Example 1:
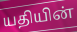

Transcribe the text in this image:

யதியின்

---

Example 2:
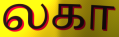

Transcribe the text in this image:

லகா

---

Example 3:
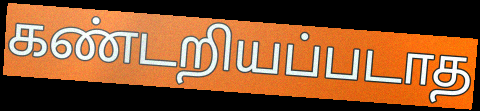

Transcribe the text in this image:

கண்டறியப்படாத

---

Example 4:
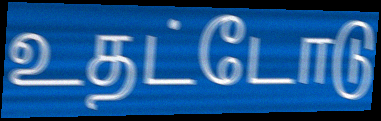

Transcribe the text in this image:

உதட்டோடு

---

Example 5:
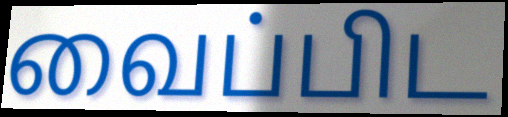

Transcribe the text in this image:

வைப்பிட